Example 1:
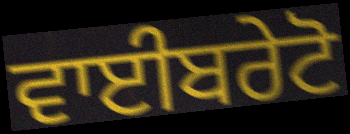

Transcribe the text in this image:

ਵਾਈਬਰੇਟੋ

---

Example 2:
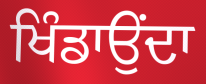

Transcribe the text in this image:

ਖਿੰਡਾਉਂਦਾ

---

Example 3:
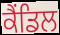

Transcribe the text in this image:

ਕੈਂਡਿਲ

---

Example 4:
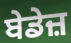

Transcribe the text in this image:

ਬੇਡੇਜ਼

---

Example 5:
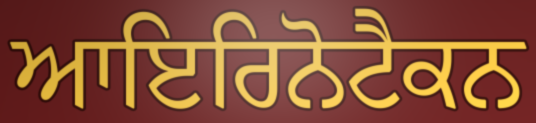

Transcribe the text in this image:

ਆਇਰਿਨੋਟੈਕਨ